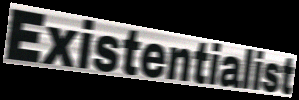
Existentialist